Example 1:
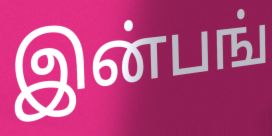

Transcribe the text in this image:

இன்பங்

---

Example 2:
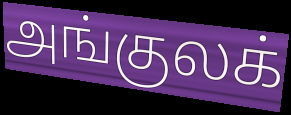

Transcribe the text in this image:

அங்குலக்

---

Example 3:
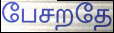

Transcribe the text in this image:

பேசறதே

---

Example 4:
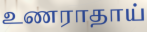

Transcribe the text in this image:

உணராதாய்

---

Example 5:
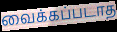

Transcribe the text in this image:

வைக்கப்படாத